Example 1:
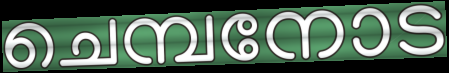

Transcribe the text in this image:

ചെമ്പനോട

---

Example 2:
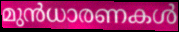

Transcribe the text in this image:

മുൻധാരണകൾ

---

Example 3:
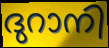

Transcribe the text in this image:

ദുറാനി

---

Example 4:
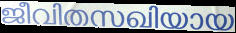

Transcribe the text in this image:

ജീവിതസഖിയായ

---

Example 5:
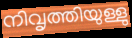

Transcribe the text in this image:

നിവൃത്തിയുള്ളു